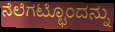
ನೆಲೆಗಟ್ಟೊಂದನ್ನು